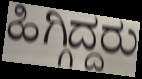
ಹಿಗ್ಗಿದ್ದರು